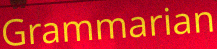
Grammarian